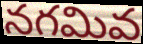
నగమివ